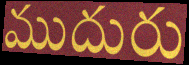
ముదురు